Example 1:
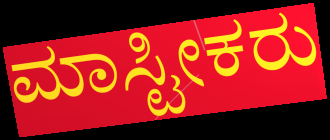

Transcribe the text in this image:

ಮಾಸ್ಟೀಕರು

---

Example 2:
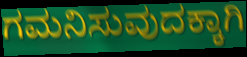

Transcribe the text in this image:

ಗಮನಿಸುವುದಕ್ಕಾಗಿ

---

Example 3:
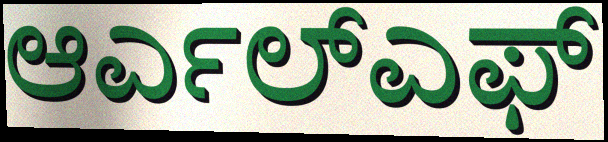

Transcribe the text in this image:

ಆರ್ಎಲ್ಎಫ್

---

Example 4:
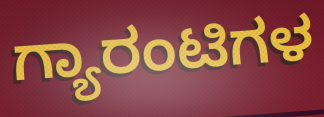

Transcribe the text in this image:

ಗ್ಯಾರಂಟಿಗಳ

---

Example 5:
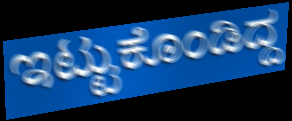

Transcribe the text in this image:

ಇಟ್ಟುಕೊಂಡಿದ್ದ